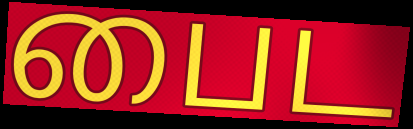
பைட